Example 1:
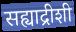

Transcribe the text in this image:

सह्याद्रीशी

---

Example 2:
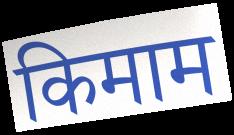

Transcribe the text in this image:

किमाम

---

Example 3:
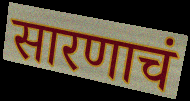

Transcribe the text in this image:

सारणाचं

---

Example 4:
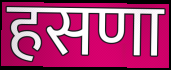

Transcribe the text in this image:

हसणा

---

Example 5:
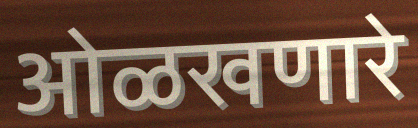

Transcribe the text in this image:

ओळखणारे